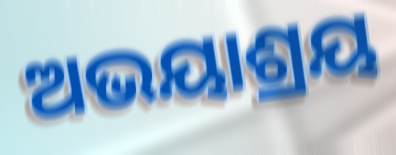
ଅଭୟାଶ୍ରୟ